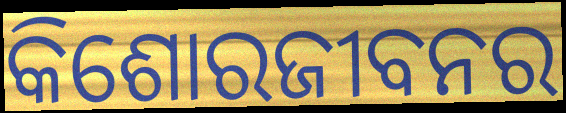
କିଶୋରଜୀବନର